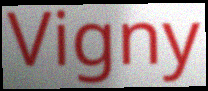
Vigny